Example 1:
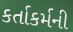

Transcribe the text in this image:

કર્તાકર્મની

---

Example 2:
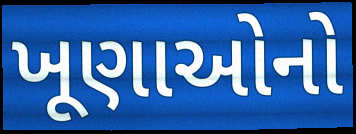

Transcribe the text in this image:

ખૂણાઓનો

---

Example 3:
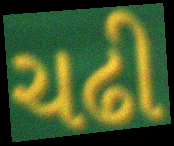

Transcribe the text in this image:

ચઢી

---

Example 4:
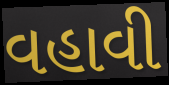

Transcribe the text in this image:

વહાવી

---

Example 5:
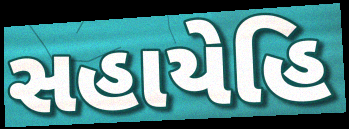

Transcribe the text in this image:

સહાયેહિ